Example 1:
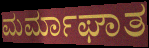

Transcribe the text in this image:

ಮರ್ಮಾಘಾತ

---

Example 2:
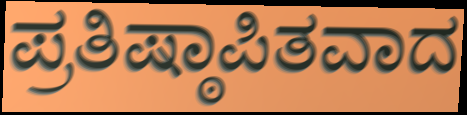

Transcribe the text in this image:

ಪ್ರತಿಷ್ಠಾಪಿತವಾದ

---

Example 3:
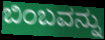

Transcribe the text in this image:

ಬಿಂಬವನ್ನು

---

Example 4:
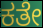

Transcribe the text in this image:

ಕತೇ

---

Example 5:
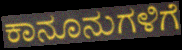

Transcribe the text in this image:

ಕಾನೂನುಗಳಿಗೆ